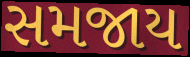
સમજાય